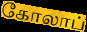
கோலாப்